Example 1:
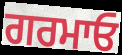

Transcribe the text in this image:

ਗਰਮਾਓ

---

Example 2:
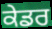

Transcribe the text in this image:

ਕੇਡਰ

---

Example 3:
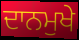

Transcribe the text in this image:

ਦਾਨਮੁਖੇ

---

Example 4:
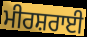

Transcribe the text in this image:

ਮੀਰਸ਼ਰਾਈ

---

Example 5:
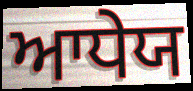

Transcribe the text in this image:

ਆਧੇਯ